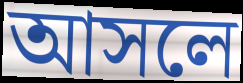
আসলে